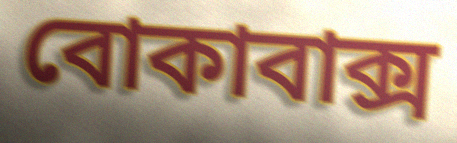
বোকাবাক্স